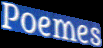
Poemes